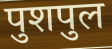
पुशपुल